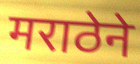
मराठेने